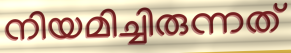
നിയമിച്ചിരുന്നത്